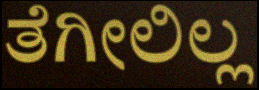
ತೆಗೀಲಿಲ್ಲ